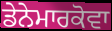
ਡੇਨੇਮਾਰਕੋਵਾ